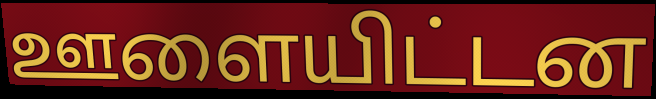
ஊளையிட்டன